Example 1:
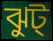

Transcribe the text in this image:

ঝুট্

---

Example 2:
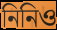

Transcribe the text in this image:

নিনিও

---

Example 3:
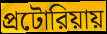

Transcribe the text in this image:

প্রটোরিয়ায়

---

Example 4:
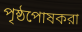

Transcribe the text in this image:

পৃষ্ঠপোষকরা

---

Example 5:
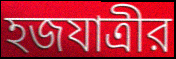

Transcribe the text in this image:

হজযাত্রীর